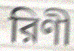
রিণী